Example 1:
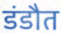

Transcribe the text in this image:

डंडौत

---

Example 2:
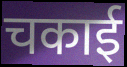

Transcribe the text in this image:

चकाई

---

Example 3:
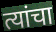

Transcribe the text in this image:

त्यांचा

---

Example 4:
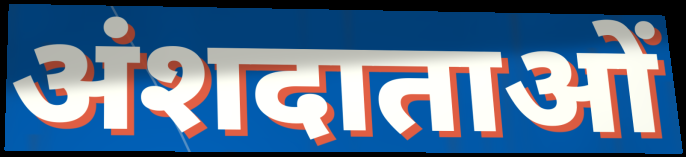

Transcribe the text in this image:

अंशदाताओं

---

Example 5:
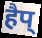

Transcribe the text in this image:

हैप्